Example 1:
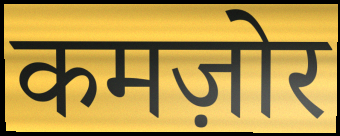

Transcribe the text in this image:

कमज़ोर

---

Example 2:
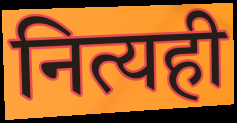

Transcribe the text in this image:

नित्यही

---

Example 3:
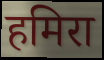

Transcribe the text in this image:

हमिरा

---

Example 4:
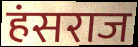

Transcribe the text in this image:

हंसराज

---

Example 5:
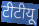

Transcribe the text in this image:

टीटीयू